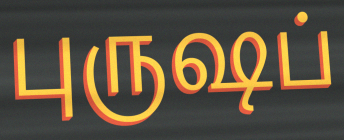
புருஷப்